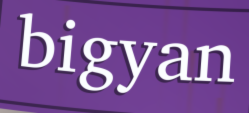
bigyan